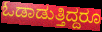
ಓಡಾಡುತ್ತಿದ್ದರೂ